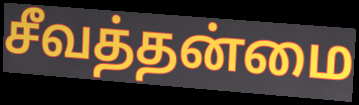
சீவத்தன்மை